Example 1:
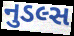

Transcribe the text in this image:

નુડલ્સ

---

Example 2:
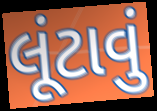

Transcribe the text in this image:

લૂંટાવું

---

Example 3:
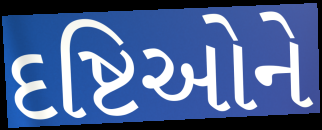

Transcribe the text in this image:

દષ્ટિઓને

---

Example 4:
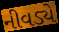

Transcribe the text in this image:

નીવડ્યે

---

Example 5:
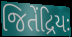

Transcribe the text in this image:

જિતેંદ્રિયઃ